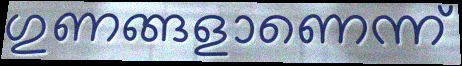
ഗുണങ്ങളാണെന്ന്